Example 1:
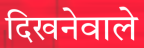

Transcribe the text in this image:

दिखनेवाले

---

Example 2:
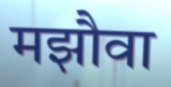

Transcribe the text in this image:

मझौवा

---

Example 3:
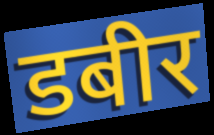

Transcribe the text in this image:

डबीर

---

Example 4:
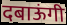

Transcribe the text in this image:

दबाऊंगी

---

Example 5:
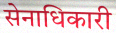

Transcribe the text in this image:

सेनाधिकारी